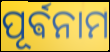
ପୂର୍ଵନାମ